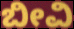
ಬೀವಿ